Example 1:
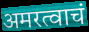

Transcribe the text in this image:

अमरत्वाचं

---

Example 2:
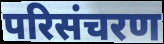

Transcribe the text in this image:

परिसंचरण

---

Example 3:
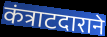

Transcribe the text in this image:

कंत्राटदाराने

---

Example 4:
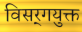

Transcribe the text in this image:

विसर्गयुक्त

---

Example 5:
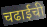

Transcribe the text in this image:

चढाईची